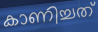
കാണിച്ചത്